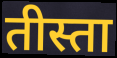
तीस्ता